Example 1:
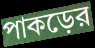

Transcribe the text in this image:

পাকড়ের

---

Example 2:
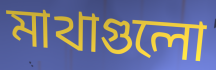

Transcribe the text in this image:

মাথাগুলো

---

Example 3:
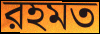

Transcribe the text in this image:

রহমত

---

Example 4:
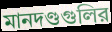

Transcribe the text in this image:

মানদণ্ডগুলির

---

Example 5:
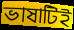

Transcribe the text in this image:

ভাষাটিই